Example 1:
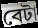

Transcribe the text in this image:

বেটা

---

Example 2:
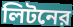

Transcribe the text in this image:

লিটনের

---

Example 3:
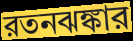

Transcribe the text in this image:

রতনঝঙ্কার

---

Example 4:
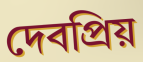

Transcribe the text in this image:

দেবপ্রিয়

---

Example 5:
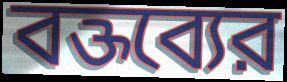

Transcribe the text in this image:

বক্তব্যের